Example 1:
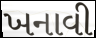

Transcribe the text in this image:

ખનાવી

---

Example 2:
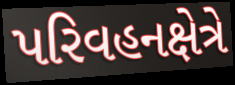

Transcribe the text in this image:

પરિવહનક્ષેત્રે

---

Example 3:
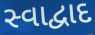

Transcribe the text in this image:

સ્વાદ્વાદ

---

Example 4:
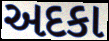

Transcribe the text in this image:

અદકા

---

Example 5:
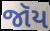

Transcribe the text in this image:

જૉય